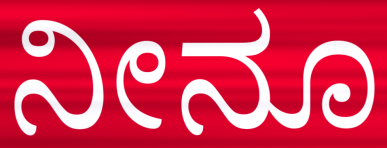
ನೀನೂ